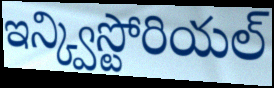
ఇన్క్విస్టోరియల్